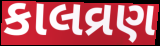
કાલવ્રણ